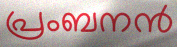
പ്രംബനൻ